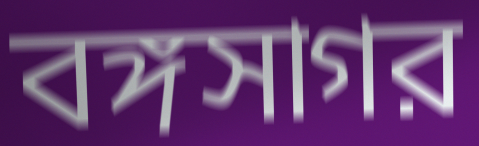
বঙ্গসাগর